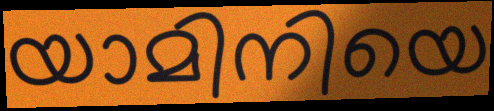
യാമിനിയെ